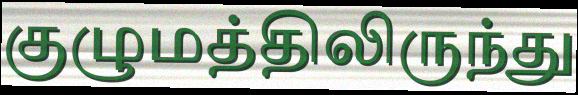
குழுமத்திலிருந்து